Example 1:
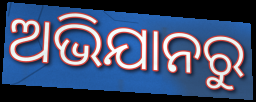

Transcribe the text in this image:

ଅଭିଯାନରୁ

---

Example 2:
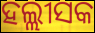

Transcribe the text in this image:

ହଲ୍ଲୀସକ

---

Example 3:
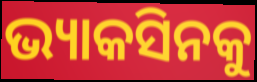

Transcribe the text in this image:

ଭ୍ୟାକସିନକୁ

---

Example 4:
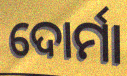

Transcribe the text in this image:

ଦୋର୍ମା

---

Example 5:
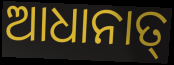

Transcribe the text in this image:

ଆଧାନାତ୍